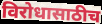
विरोधासाठीच